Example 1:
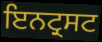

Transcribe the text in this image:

ਇਨਟ੍ਰਸਟ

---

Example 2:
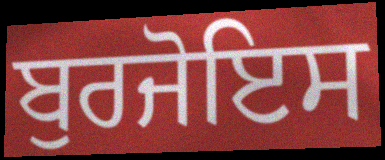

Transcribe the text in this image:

ਬੁਰਜੋਇਸ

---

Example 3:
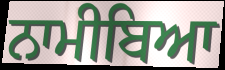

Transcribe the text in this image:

ਨਾਮੀਬਿਆ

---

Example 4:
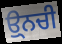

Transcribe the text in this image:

ਉ੍ਨਚੀ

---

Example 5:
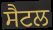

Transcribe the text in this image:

ਸੈਟਲ